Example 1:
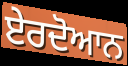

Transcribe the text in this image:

ਏਰਦੋਆਨ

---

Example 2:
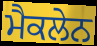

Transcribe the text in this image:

ਮੈਕਲੇਨ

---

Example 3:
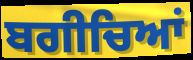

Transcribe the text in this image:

ਬਗੀਚਿਆਂ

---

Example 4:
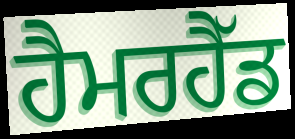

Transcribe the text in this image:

ਹੈਮਰਹੈੱਡ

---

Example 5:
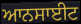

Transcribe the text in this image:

ਆਨਸਾਈਟ